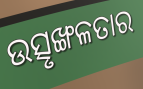
ଉତ୍ସୃଙ୍ଖଳତାର